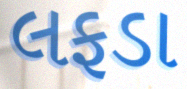
લફડા